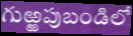
గుఱ్ఱపుబండిలో